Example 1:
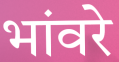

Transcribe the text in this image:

भांवरे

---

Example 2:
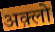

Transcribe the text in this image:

अक़्लो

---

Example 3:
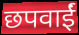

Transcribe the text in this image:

छपवाईं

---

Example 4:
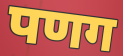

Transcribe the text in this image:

पणग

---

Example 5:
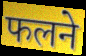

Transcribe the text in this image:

फलने